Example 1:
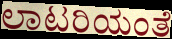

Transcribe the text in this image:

ಲಾಟರಿಯಂತೆ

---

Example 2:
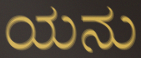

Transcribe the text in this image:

ಯನು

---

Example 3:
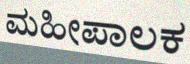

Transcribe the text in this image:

ಮಹೀಪಾಲಕ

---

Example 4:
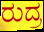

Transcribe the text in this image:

ರುದ್ರ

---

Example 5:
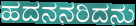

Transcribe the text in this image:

ಹದನನರಿದನು